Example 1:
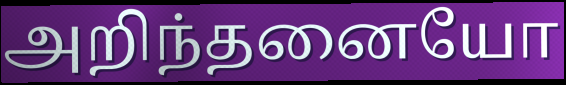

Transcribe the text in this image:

அறிந்தனையோ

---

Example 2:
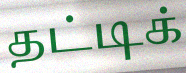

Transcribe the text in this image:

தட்டிக்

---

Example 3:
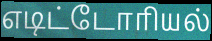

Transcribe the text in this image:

எடிட்டோரியல்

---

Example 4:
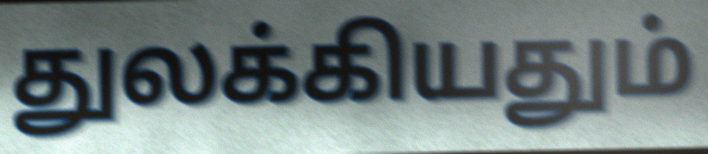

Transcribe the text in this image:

துலக்கியதும்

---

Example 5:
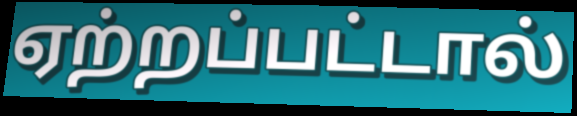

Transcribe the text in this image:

ஏற்றப்பட்டால்